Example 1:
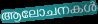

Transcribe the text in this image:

ആലോചനകൾ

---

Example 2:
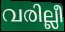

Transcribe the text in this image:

വരില്ലീ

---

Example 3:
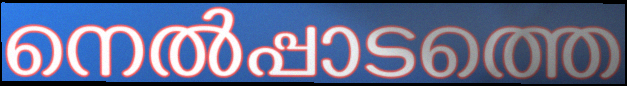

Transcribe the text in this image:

നെൽപ്പാടത്തെ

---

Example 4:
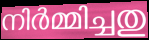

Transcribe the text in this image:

നിർമ്മിച്ചതു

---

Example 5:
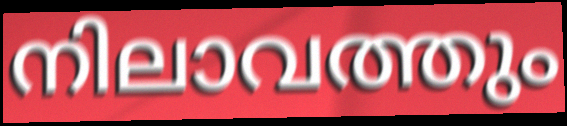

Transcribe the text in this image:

നിലാവത്തും